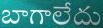
బాగాలేదు